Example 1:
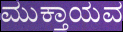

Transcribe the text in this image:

ಮುಕ್ತಾಯವ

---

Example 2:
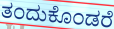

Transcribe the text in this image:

ತಂದುಕೊಂಡರೆ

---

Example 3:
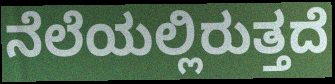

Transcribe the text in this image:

ನೆಲೆಯಲ್ಲಿರುತ್ತದೆ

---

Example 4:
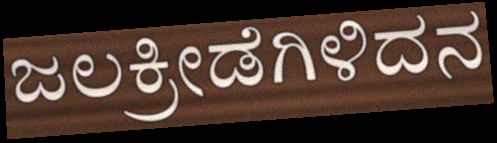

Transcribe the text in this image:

ಜಲಕ್ರೀಡೆಗಿಳಿದನ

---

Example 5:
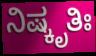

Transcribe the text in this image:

ನಿಷ್ಕೃತಿಃ